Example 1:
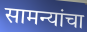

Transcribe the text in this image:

सामन्यांचा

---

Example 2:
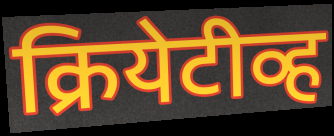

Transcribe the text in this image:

क्रियेटीव्ह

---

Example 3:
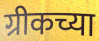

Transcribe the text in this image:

ग्रीकच्या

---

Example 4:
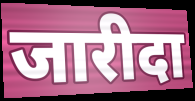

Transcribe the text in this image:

जारीदा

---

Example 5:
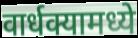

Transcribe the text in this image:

वार्धक्यामध्ये